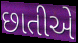
છાતીએ